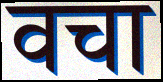
वचा